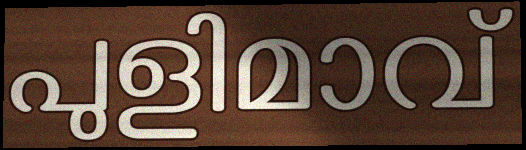
പുളിമാവ്